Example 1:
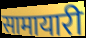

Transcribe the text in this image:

सामायारी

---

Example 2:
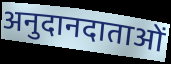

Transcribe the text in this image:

अनुदानदाताओं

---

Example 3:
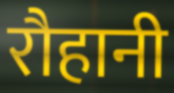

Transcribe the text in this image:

रौहानी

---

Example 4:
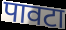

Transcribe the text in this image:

पावटा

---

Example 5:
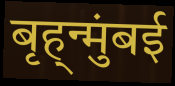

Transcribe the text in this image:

बृह्न्मुंबई